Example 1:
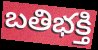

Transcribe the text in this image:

బతిభక్తి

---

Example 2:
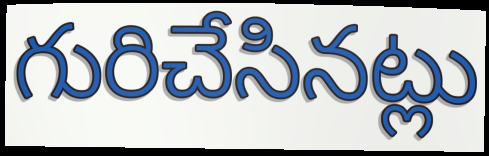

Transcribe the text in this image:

గురిచేసినట్లు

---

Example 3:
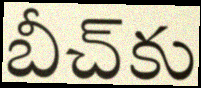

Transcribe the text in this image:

బీచ్‌కు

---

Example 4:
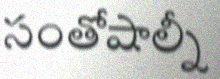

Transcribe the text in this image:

సంతోషాల్నీ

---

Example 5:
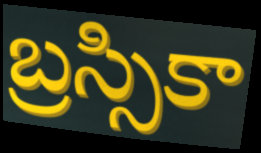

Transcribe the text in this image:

బ్రస్సికా